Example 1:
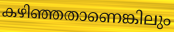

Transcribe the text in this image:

കഴിഞ്ഞതാണെങ്കിലും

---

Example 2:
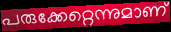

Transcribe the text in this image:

പരുക്കേറ്റെന്നുമാണ്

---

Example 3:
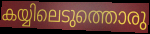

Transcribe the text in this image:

കയ്യിലെടുത്തൊരു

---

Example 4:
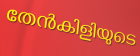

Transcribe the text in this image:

തേൻകിളിയുടെ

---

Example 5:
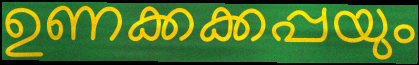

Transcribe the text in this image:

ഉണക്കക്കപ്പയും